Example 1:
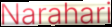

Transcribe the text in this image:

Narahari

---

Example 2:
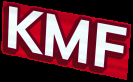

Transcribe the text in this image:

KMF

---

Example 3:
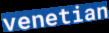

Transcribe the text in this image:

venetian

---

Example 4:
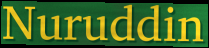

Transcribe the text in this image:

Nuruddin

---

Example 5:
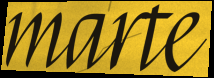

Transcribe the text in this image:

marte